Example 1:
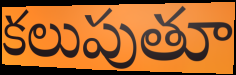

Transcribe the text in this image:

కలుపుతూ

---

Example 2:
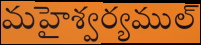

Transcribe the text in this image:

మహైశ్వర్యముల్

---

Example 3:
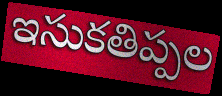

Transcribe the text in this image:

ఇసుకతిప్పల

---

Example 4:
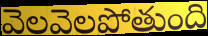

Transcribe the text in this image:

వెలవెలపోతుంది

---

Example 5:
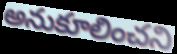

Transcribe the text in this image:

అనుకూలించని